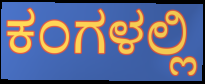
ಕಂಗಳಲ್ಲಿ